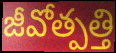
జీవోత్పత్తి